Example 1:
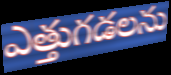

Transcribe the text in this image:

ఎత్తుగడలను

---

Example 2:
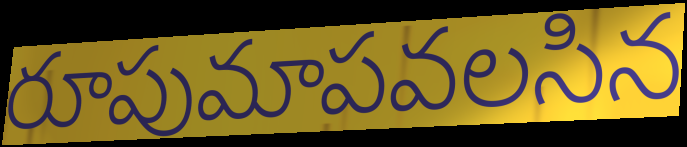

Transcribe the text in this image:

రూపుమాపవలసిన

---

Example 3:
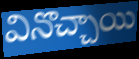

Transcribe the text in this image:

వినొచ్చాయి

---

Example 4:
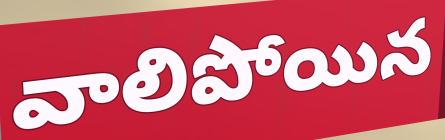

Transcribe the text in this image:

వాలిపోయిన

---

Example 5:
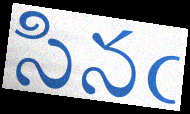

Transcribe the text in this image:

సినఁ